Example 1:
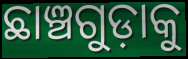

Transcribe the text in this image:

ଛାଞ୍ଚଗୁଡ଼ାକୁ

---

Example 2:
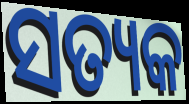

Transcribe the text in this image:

ସତ୍ୟକ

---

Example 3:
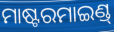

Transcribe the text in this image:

ମାଷ୍ଟରମାଇଣ୍ଡ୍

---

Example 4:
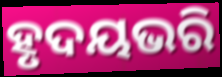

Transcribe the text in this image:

ହୃଦୟଭରି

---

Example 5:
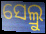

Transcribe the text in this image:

ସେଲ୍ରୁ